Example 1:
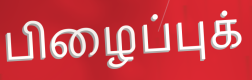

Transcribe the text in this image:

பிழைப்புக்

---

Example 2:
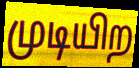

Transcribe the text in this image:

முடியிற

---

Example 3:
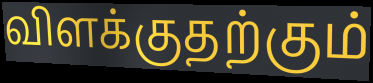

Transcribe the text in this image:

விளக்குதற்கும்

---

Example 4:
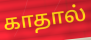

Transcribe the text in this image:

காதால்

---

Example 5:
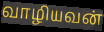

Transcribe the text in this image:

வாழியவன்